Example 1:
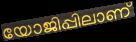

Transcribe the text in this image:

യോജിപ്പിലാണ്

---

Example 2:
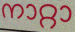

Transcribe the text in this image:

നാറ്റാ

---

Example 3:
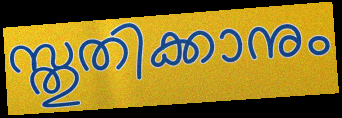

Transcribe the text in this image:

സ്തുതിക്കാനും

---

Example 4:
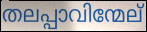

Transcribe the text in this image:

തലപ്പാവിന്മേല്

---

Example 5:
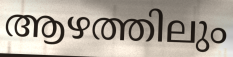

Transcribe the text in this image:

ആഴത്തിലും